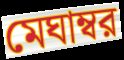
মেঘাম্বর